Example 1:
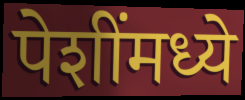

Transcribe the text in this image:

पेशींमध्ये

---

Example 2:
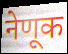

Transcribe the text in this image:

नेणूक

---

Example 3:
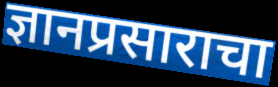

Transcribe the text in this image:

ज्ञानप्रसाराचा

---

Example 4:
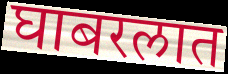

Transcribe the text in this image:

घाबरलात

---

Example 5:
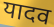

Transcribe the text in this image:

यादव